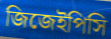
জিজেইপিসি